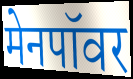
मेनपॉवर